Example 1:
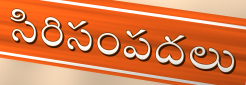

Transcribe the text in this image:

సిరిసంపదలు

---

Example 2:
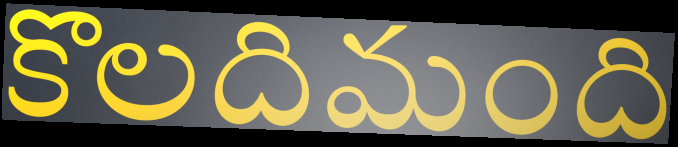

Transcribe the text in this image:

కొలదిమంది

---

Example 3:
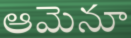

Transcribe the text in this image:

ఆమెనూ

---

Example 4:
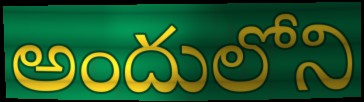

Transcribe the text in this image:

అందులోని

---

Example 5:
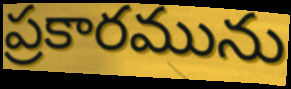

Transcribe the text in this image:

ప్రకారమును